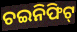
ଚଇନିଫିଟ୍